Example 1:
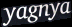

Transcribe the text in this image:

yagnya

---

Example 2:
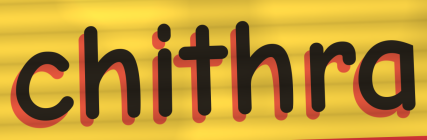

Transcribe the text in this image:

chithra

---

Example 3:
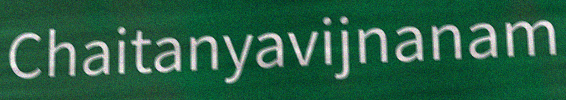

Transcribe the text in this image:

Chaitanyavijnanam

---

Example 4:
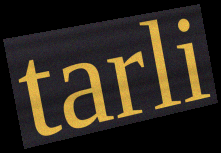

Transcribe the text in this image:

tarli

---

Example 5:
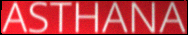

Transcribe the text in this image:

ASTHANA